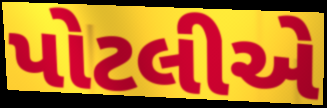
પોટલીએ